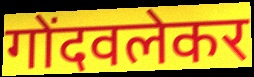
गोंदवलेकर